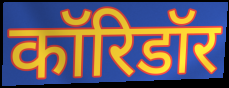
कॉरिडॉर